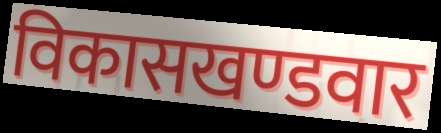
विकासखण्‍डवार